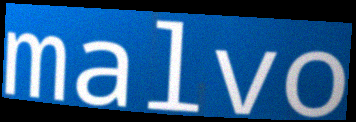
malvo